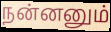
நன்னனும்